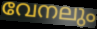
വേനലും